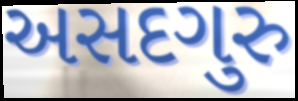
અસદગુરુ